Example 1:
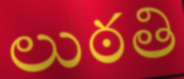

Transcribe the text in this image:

లుఠతి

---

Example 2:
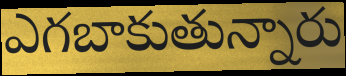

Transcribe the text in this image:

ఎగబాకుతున్నారు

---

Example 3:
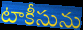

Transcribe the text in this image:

టాకీసును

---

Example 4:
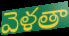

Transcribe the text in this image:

వెళతా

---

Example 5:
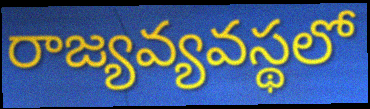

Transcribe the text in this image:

రాజ్యవ్యవస్థలో